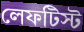
লেফটিস্ট